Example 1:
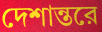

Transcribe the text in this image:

দেশান্তরে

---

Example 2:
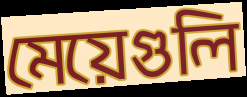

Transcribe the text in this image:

মেয়েগুলি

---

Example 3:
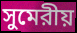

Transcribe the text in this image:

সুমেরীয়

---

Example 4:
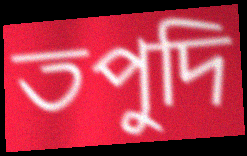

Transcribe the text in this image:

তপুদি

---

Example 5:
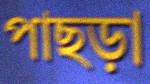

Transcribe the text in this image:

পাছড়া